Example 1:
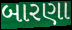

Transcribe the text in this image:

બારણા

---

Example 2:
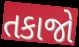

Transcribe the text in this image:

તકાજો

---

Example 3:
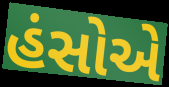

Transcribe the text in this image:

હંસોએ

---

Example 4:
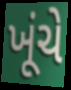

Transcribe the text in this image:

ખૂંચે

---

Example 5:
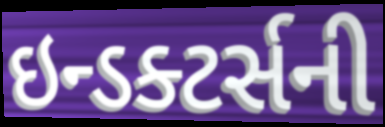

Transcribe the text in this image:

ઇન્ડક્ટર્સની